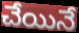
చేయినే